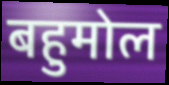
बहुमोल